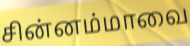
சின்னம்மாவை